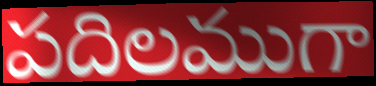
పదిలముగా